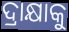
ଦ୍ରାକ୍ଷାକୁ